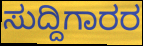
ಸುದ್ದಿಗಾರರ